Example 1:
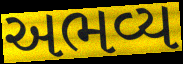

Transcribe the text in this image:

અભવ્ય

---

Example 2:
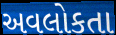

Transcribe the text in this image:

અવલોકતા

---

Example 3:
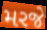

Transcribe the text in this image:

મરજે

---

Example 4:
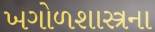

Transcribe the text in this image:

ખગોળશાસ્ત્રના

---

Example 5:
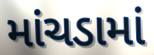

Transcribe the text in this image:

માંચડામાં